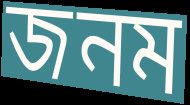
জনম